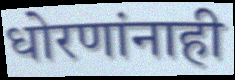
धोरणांनाही